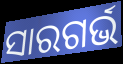
ସାରଗର୍ଭ